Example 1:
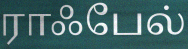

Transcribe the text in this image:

ராஃபேல்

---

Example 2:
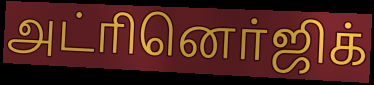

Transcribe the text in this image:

அட்ரினெர்ஜிக்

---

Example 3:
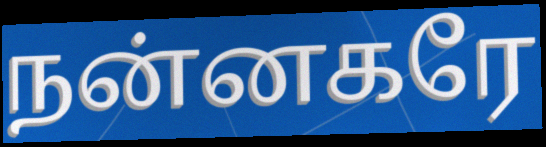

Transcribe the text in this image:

நன்னகரே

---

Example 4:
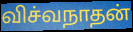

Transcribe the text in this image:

விச்வநாதன்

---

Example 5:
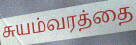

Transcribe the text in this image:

சுயம்வரத்தை